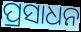
ପ୍ରସାଧନ